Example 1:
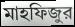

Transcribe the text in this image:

মাহফিজুর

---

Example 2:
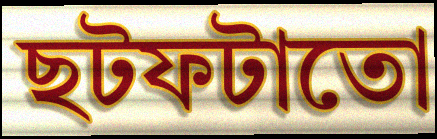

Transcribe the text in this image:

ছটফটাতো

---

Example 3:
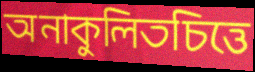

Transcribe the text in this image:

অনাকুলিতচিত্তে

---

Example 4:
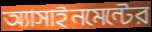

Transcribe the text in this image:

অ্যাসাইনমেন্টের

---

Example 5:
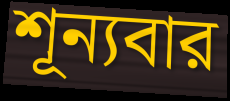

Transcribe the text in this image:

শূন্যবার